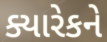
ક્યારેકને